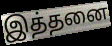
இத்தனை